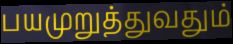
பயமுறுத்துவதும்